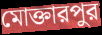
মোক্তারপুর